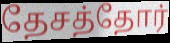
தேசத்தோர்